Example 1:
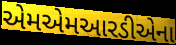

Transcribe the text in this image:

એમએમઆરડીએના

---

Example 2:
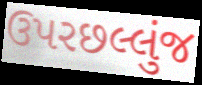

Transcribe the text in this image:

ઉપરછલ્લુંજ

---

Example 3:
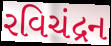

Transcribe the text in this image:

રવિચંદ્રન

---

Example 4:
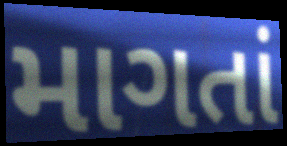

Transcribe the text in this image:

માગતાં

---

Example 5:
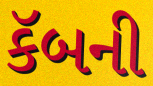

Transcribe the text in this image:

કૅબની